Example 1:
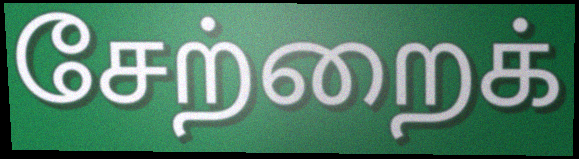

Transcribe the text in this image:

சேற்றைக்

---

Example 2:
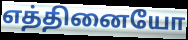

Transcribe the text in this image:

எத்தினையோ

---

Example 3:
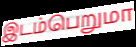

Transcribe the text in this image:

இடம்பெறுமா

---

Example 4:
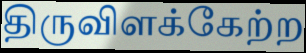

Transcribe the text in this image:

திருவிளக்கேற்ற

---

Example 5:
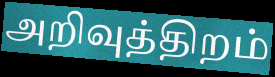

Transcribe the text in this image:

அறிவுத்திறம்